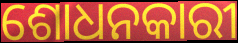
ଶୋଧନକାରୀ